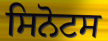
ਸਿਨੋਟਸ